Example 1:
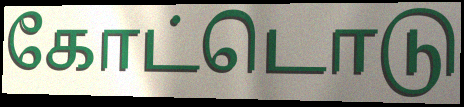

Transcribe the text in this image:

கோட்டொடு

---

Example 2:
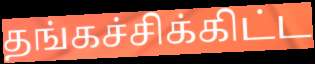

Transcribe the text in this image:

தங்கச்சிக்கிட்ட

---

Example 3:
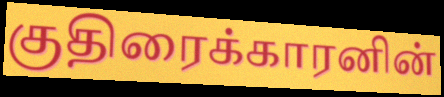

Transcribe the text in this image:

குதிரைக்காரனின்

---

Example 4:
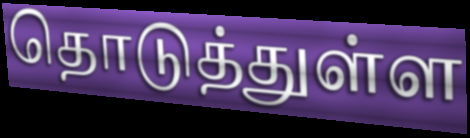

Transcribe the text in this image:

தொடுத்துள்ள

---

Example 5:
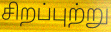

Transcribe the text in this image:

சிறப்புற்று